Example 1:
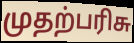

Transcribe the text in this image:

முதற்பரிசு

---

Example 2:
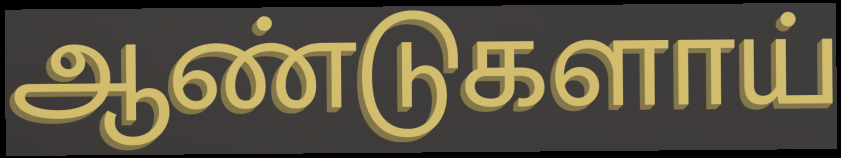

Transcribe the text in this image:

ஆண்டுகளாய்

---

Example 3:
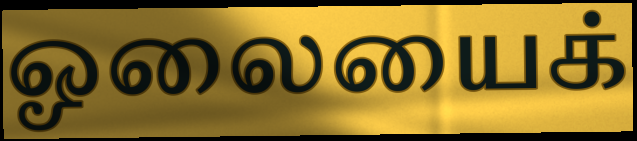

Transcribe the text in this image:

ஓலையைக்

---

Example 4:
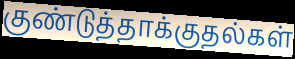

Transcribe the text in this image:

குண்டுத்தாக்குதல்கள்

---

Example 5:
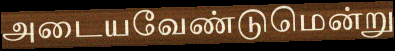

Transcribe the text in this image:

அடையவேண்டுமென்று